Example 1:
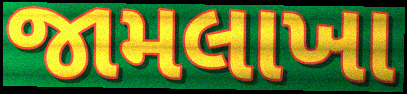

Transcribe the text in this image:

જામલાખા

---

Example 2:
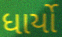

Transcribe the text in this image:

ધાર્યો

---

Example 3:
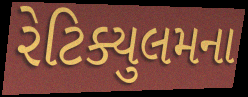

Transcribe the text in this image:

રેટિક્યુલમના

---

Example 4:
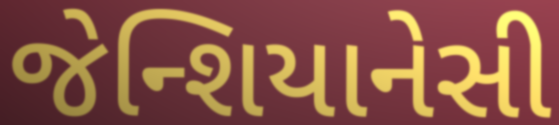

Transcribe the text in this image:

જેન્શિયાનેસી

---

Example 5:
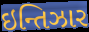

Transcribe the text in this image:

ઇન્તિઝાર